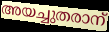
അയച്ചുതരാന്